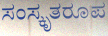
ಸಂಸ್ಕೃತರೂಪ